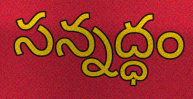
సన్నద్ధం